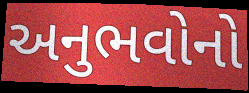
અનુભવોનો